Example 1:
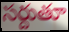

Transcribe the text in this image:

సర్దుతూ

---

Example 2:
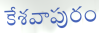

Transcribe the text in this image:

కేశవాపురం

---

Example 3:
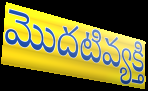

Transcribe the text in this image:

మొదటివ్యక్తి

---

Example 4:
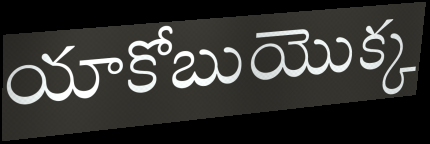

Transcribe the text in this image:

యాకోబుయొక్క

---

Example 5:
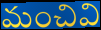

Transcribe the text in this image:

మంచివి